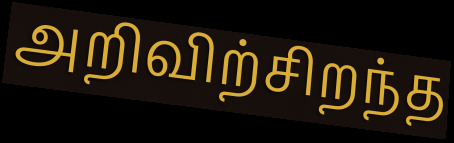
அறிவிற்சிறந்த